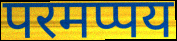
परमप्पय